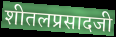
शीतलप्रसादजी